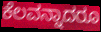
ಕೆಲವನ್ನಾದರೂ